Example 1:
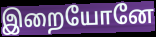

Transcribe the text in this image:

இறையோனே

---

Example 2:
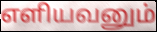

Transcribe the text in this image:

எளியவனும்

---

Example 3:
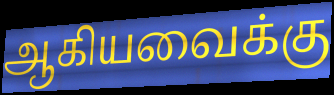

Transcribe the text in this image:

ஆகியவைக்கு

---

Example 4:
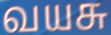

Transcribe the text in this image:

வயசு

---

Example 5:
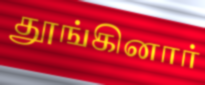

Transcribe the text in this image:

தூங்கினார்